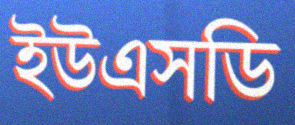
ইউএসডি